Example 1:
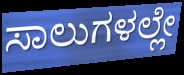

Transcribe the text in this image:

ಸಾಲುಗಳಲ್ಲೇ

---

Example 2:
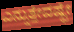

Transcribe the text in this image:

ಎನ್ನುತ್ತೇವಷ್ಟೇ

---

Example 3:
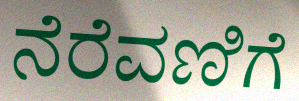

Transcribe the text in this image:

ನೆರೆವಣಿಗೆ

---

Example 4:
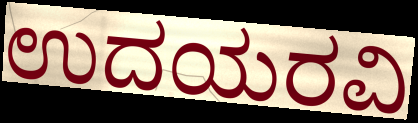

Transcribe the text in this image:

ಉದಯರವಿ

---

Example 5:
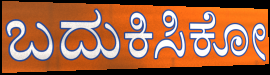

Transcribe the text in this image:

ಬದುಕಿಸಿಕೋ